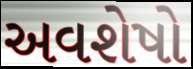
અવશેષો